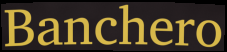
Banchero